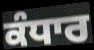
ਕੰਧਾਰ